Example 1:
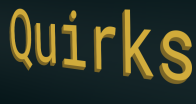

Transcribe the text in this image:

Quirks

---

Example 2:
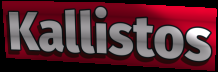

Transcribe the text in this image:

Kallistos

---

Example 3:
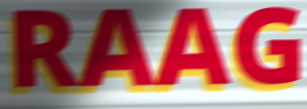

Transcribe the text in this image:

RAAG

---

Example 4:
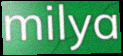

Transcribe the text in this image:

milya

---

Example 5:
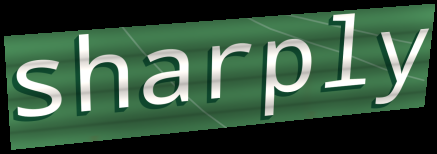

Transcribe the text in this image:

sharply